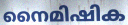
നൈമിഷിക